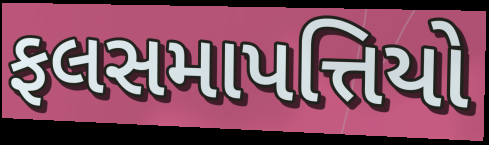
ફલસમાપત્તિયો